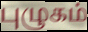
புழுகம்